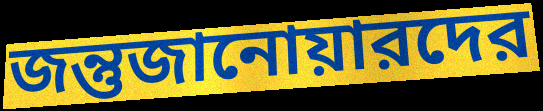
জন্তুজানোয়ারদের